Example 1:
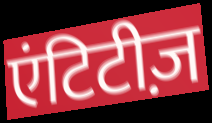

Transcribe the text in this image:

एंटिटीज़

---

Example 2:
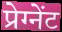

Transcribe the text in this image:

प्रेग्‍नेंट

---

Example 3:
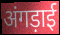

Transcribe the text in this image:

अंगड़ाई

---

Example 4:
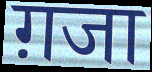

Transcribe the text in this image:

ग़जा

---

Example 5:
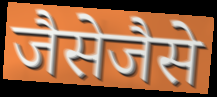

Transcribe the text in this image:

जैसेजैसे